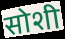
सोशी